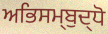
ਅਭਿਸਮ੍ਬੁਦ੍ਧੋ